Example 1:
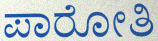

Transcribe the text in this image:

ಪಾರೋತಿ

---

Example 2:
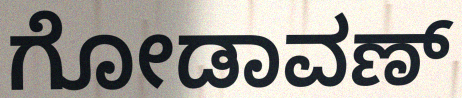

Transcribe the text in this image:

ಗೋಡಾವಣ್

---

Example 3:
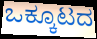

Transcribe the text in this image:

ಒಕ್ಕೂಟದ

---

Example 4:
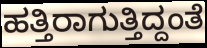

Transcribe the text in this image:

ಹತ್ತಿರಾಗುತ್ತಿದ್ದಂತೆ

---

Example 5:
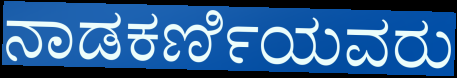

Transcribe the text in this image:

ನಾಡಕರ್ಣಿಯವರು